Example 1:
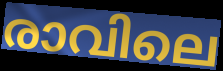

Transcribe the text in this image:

രാവിലെ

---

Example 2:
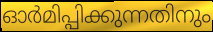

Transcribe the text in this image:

ഓർമിപ്പിക്കുന്നതിനും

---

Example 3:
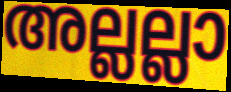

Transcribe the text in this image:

അല്ലല്ലാ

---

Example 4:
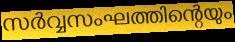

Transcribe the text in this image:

സർവ്വസംഘത്തിന്റെയും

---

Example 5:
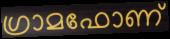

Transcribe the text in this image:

ഗ്രാമഫോണ്